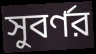
সুবর্ণর